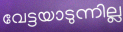
വേട്ടയാടുന്നില്ല